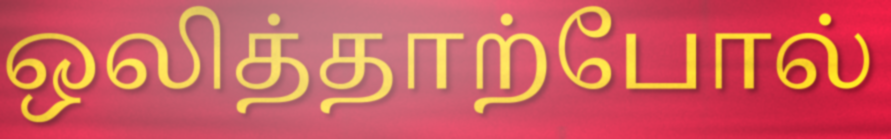
ஒலித்தாற்போல்